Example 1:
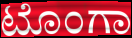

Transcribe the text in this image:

ಟೊಂಗಾ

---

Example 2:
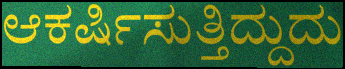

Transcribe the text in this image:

ಆಕರ್ಷಿಸುತ್ತಿದ್ದುದು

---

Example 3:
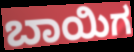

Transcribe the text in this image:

ಬಾಯಿಗ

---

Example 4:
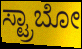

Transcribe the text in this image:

ಸ್ಟ್ರಾಬೋ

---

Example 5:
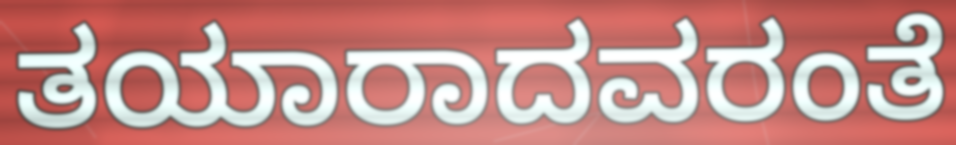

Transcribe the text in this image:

ತಯಾರಾದವರಂತೆ